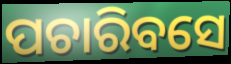
ପଚାରିବସେ